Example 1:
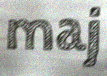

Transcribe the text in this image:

maj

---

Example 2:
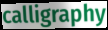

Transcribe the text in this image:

calligraphy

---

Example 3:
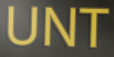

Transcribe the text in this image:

UNT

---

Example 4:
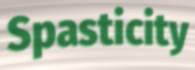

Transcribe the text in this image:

Spasticity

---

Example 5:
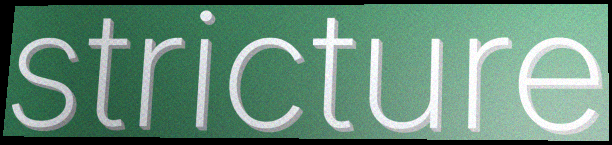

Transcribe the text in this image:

stricture